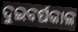
ଦୁଇବର୍ଷକାଳ